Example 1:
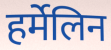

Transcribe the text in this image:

हर्मेलिन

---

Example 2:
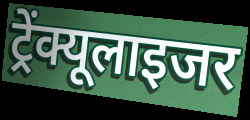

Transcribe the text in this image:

ट्रेंक्यूलाइजर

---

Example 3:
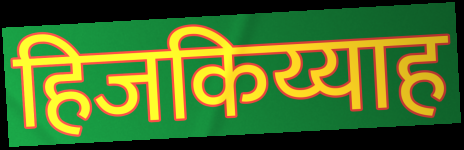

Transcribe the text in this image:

हिजकिय्याह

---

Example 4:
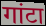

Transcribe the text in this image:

गांटा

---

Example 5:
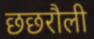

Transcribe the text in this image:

छछरौली